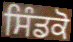
ਸਿੰਡਕੋ